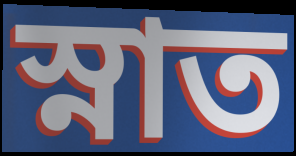
স্নাত